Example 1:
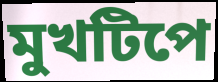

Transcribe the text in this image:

মুখটিপে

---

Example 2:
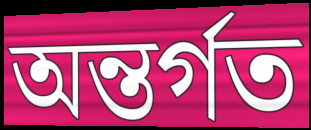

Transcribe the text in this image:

অন্তর্গত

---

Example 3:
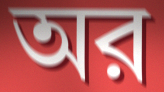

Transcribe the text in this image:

অর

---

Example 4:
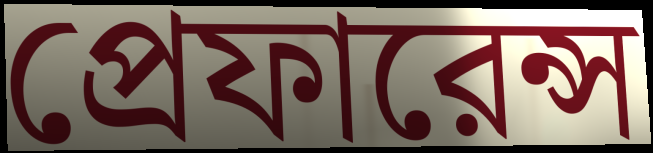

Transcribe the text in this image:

প্রেফারেন্স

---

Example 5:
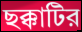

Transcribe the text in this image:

ছক্কাটির